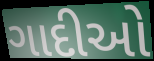
ગાદીઓ